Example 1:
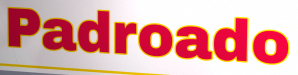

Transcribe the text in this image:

Padroado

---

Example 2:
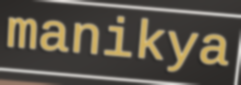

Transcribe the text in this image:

manikya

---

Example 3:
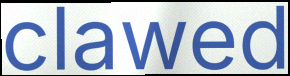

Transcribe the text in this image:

clawed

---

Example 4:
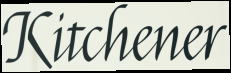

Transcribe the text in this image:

Kitchener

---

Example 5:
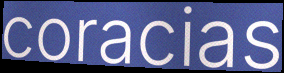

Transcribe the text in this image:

coracias